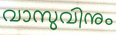
വാസുവിനും